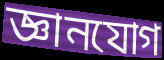
জ্ঞানযোগ